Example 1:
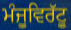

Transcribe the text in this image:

ਮੰਜੂਵਿਰੱਟੂ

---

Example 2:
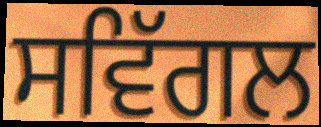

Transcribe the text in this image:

ਸਵਿੱਗਲ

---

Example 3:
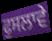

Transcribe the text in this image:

ਫੁਸਲਾਵੇ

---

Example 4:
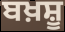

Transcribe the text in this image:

ਬਖ਼ਸ਼ੂ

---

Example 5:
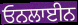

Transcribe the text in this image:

ਓਨਲਾਈਨ